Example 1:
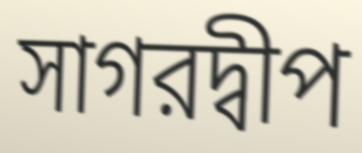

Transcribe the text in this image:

সাগরদ্বীপ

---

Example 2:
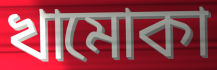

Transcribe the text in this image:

খামোকা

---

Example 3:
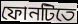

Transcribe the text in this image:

ফোনটিতে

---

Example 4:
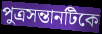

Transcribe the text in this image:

পুত্রসন্তানটিকে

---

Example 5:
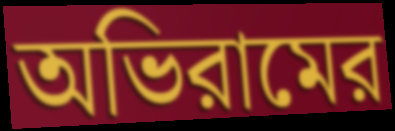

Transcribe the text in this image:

অভিরামের